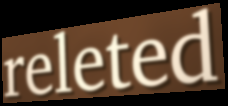
releted